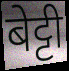
बेट्टी